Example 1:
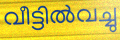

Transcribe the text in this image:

വീട്ടിൽവച്ചു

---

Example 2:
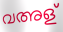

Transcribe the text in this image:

വഅള്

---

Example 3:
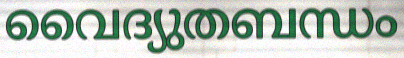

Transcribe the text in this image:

വൈദ്യുതബന്ധം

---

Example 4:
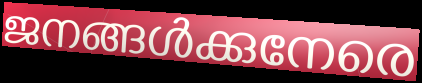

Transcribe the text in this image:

ജനങ്ങൾക്കുനേരെ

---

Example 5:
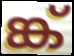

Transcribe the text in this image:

ങ്ക്